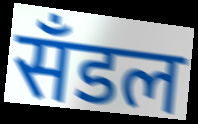
सँडल